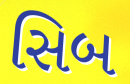
સિબ